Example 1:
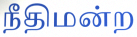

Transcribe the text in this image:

நீதிமன்ற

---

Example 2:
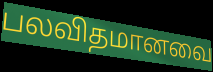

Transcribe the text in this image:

பலவிதமானவை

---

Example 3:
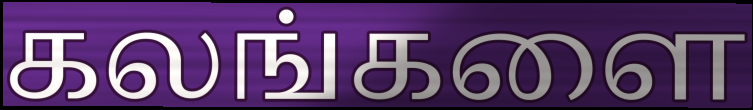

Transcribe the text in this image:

கலங்களை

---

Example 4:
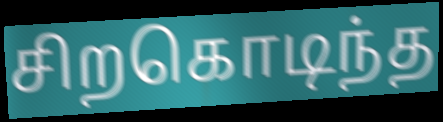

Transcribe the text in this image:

சிறகொடிந்த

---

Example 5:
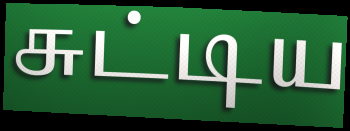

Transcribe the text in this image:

சுட்டிய